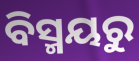
ବିସ୍ମୟରୁ